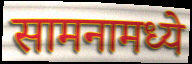
सामनामध्ये